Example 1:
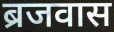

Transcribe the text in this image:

ब्रजवास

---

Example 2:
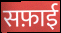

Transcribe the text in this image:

सफ़ाई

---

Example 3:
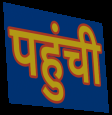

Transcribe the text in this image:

पहुंची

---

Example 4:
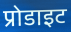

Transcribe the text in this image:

प्रोडाइट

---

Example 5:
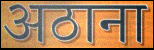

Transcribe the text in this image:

अठाना